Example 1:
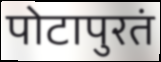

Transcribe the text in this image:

पोटापुरतं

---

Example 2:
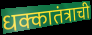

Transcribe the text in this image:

धक्कातंत्राची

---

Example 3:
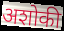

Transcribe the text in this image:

अशोकी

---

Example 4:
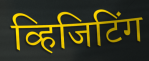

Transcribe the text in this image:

व्हिजिटिंग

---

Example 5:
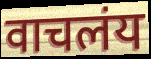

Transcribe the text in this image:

वाचलंय